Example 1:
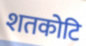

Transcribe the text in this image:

शतकोटि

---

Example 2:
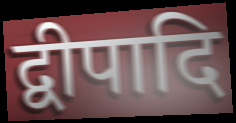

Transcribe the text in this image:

द्वीपादि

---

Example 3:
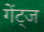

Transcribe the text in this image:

गेंट्ज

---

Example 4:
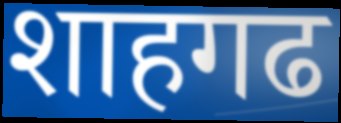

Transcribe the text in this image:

शाहगढ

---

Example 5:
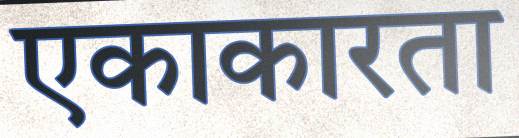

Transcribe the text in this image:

एकाकारता